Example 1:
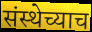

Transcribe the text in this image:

संस्थेच्याच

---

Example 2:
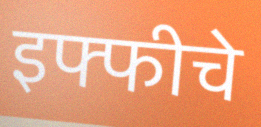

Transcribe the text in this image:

इफ्फीचे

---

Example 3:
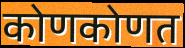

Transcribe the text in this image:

कोणकोणत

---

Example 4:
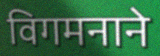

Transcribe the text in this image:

विगमनाने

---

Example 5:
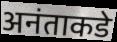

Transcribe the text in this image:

अनंताकडे